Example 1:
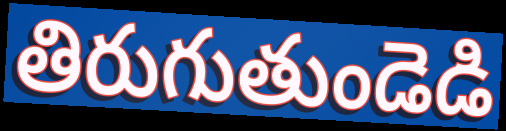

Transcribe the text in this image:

తిరుగుతుండెడి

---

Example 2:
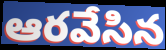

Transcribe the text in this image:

ఆరవేసిన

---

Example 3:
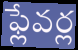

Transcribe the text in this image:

ఫ్లేవర్ల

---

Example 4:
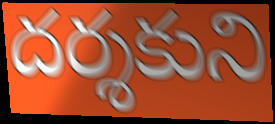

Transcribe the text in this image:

దర్శకుని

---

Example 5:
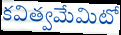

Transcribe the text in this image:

కవిత్వమేమిటో